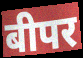
बीपर